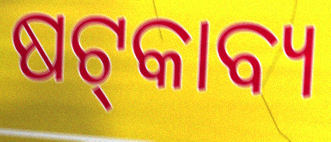
ଷଟ୍‌କାବ୍ୟ